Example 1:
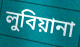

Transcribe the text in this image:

লুবিয়ানা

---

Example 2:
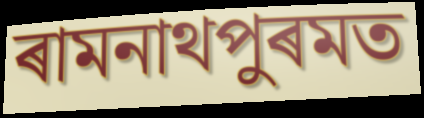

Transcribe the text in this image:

ৰামনাথপুৰমত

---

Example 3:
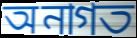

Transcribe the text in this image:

অনাগত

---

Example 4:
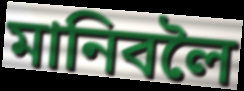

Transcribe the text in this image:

মানিবলৈ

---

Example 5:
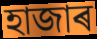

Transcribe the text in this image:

হাজাৰ